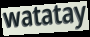
watatay